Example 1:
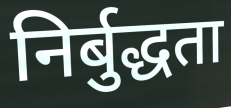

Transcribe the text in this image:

निर्बुद्धता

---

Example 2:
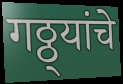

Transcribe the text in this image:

गठ्ठ्यांचे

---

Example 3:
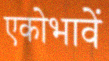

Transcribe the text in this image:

एकोभावें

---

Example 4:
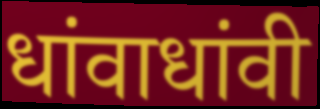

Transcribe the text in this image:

धांवाधांवी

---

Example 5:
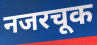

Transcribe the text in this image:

नजरचूक